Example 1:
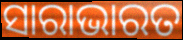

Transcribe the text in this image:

ସାରାଭାରତ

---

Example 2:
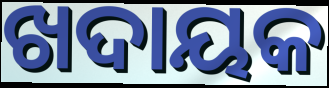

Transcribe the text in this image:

ଖଦାୟକ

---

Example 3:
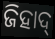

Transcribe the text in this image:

ଜିହାଦ୍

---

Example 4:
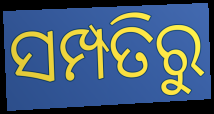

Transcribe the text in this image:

ସମ୍ପତିରୁ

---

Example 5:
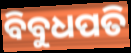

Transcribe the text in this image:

ବିବୁଧପତି